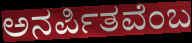
ಅನರ್ಪಿತವೆಂಬ